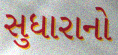
સુધારાનો